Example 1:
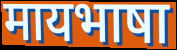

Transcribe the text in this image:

मायभाषा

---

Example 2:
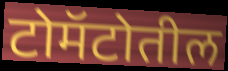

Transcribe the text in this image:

टोमॅटोतील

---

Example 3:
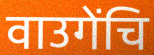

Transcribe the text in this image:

वाउगेंचि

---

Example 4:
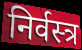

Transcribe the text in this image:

निर्वस्त्र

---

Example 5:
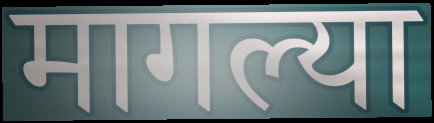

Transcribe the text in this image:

मागल्या